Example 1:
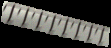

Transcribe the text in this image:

TTTTTTTT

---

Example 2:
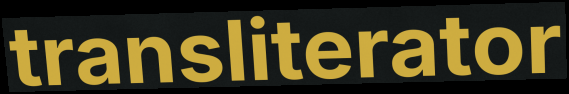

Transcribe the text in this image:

transliterator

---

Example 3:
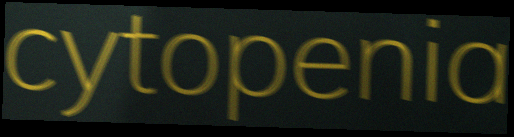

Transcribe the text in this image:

cytopenia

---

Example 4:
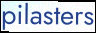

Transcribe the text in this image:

pilasters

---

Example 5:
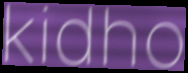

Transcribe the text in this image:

kidho